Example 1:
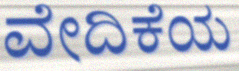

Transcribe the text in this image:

ವೇದಿಕೆಯ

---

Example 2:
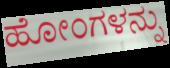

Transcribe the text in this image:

ಹೋಂಗಳನ್ನು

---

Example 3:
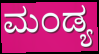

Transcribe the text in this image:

ಮಂಡ್ಯ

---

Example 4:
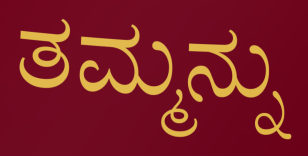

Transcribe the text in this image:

ತಮ್ಮನ್ನು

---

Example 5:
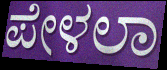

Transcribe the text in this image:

ಪೇಳಲಾ